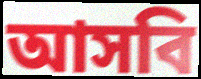
আসবি